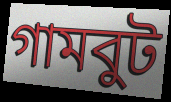
গামবুট